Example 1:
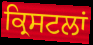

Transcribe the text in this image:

ਕ੍ਰਿਸਟਲਾਂ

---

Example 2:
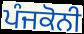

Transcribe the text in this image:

ਪੰਜਕੋਨੀ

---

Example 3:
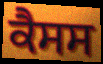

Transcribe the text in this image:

ਕੈਸਸ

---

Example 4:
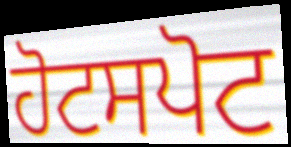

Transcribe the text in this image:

ਹੋਟਸਪੋਟ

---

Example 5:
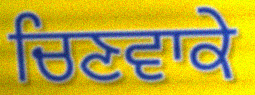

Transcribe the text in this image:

ਚਿਣਵਾਕੇ